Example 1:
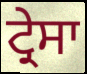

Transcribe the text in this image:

ਟ੍ਰੇਸਾ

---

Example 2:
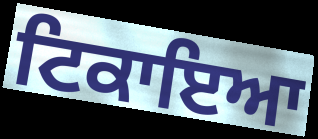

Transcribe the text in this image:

ਟਿਕਾਇਆ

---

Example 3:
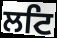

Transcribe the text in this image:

ਲਟਿ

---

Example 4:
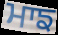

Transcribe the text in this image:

ਮਾਙ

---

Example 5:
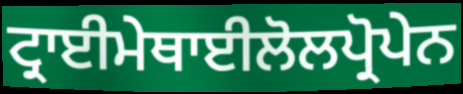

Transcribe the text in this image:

ਟ੍ਰਾਈਮੇਥਾਈਲੋਲਪ੍ਰੋਪੇਨ